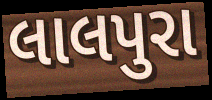
લાલપુરા